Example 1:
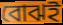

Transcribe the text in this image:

বোঝই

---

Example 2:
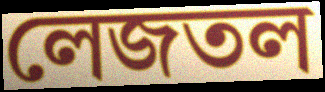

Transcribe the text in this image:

লেজতল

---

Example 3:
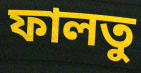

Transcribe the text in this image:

ফালতু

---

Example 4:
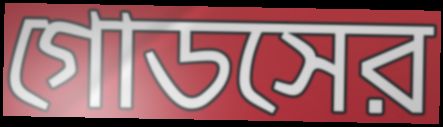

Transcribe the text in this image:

গোডসের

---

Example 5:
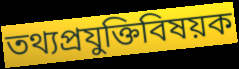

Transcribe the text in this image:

তথ্যপ্রযুক্তিবিষয়ক